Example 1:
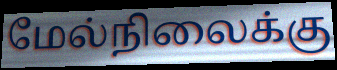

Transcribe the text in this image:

மேல்நிலைக்கு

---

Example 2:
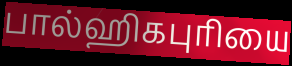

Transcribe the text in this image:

பால்ஹிகபுரியை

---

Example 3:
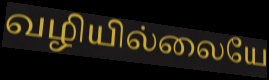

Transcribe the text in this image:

வழியில்லையே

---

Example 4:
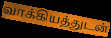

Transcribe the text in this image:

வாக்கியத்துடன்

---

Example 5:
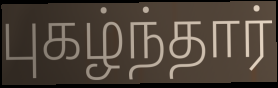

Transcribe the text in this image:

புகழ்ந்தார்